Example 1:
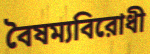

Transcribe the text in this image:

বৈষম্যবিরোধী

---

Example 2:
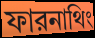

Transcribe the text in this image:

ফারনাথিং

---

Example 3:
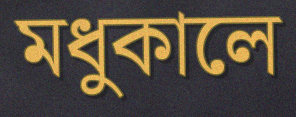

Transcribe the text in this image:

মধুকালে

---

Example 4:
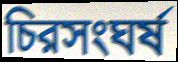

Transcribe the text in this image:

চিরসংঘর্ষ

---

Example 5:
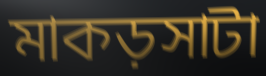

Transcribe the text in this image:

মাকড়সাটা